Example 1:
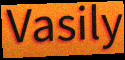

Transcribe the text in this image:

Vasily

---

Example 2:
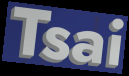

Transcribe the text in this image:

Tsai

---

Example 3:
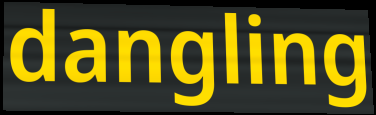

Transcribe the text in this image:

dangling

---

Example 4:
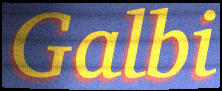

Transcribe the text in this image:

Galbi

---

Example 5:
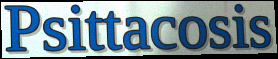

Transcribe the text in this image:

Psittacosis